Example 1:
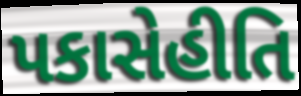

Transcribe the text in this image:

પકાસેહીતિ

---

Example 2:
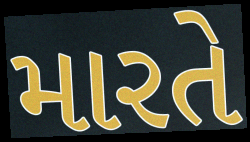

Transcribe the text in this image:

મારતે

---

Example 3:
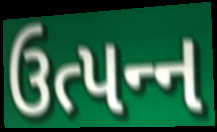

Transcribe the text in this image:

ઉત્પન્‍ન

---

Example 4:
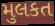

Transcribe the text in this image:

મુલકત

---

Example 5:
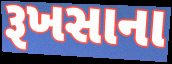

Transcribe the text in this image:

રૂખસાના